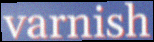
varnish